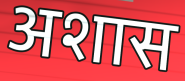
अशास